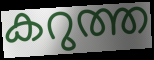
കറുത്ത